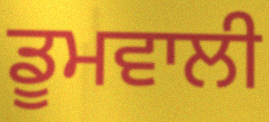
ਡੂਮਵਾਲੀ